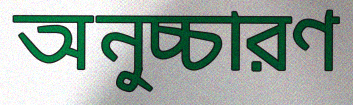
অনুচ্চারণ